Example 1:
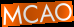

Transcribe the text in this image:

MCAO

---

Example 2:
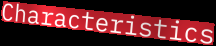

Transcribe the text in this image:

Characteristics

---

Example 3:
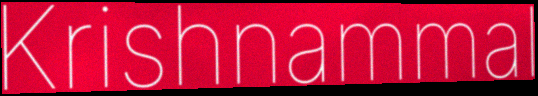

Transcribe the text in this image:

Krishnammal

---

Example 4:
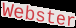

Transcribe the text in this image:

Webster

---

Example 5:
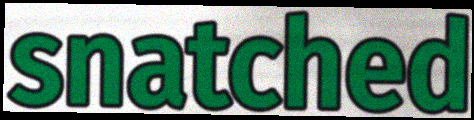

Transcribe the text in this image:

snatched